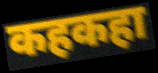
कहकहा